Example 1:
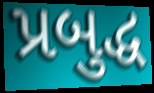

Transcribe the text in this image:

પ્રબુદ્ધ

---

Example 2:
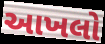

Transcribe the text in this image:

આખલો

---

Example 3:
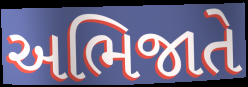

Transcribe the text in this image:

અભિજાતે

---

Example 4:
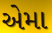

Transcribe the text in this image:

એમા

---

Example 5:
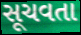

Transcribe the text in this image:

સૂચવતા